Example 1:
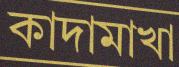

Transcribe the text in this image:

কাদামাখা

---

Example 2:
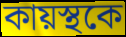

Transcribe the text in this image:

কায়স্থকে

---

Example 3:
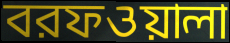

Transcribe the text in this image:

বরফওয়ালা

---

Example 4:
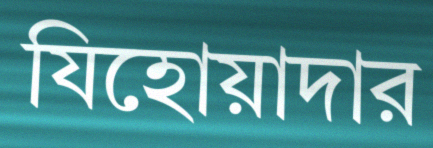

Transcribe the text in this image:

যিহোয়াদার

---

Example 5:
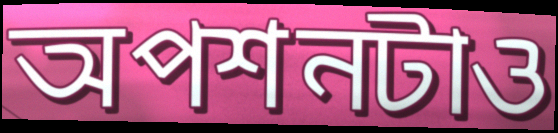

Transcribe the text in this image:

অপশনটাও